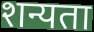
शन्यता